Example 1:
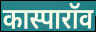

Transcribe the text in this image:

कास्पारॉव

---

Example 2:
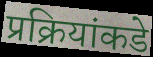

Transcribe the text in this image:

प्रक्रियांकडे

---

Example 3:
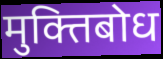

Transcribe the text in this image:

मुक्तिबोध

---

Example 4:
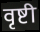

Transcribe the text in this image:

वृष्टी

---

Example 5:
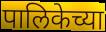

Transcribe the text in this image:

पालिकेच्या